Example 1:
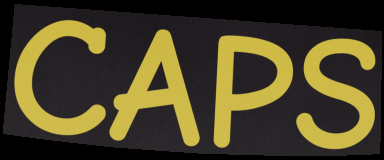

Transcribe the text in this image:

CAPS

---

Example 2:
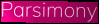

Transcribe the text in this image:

Parsimony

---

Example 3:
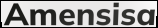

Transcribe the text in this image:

Amensisa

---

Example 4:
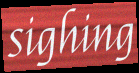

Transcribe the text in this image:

sighing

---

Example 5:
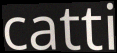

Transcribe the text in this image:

catti